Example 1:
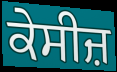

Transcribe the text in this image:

ਕੇਸੀਜ਼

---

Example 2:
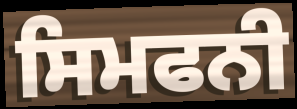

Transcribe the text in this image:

ਸਿਮਫਨੀ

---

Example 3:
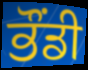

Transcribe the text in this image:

ਭੌਂਡੀ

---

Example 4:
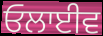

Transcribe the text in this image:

ਓਲਾਈਵ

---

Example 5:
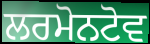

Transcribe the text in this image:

ਲਰਮੋਨਟੋਵ